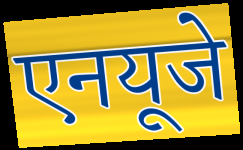
एनयूजे